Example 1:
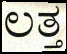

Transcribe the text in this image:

ಲತ್ತ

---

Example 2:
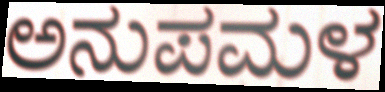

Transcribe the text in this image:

ಅನುಪಮಳ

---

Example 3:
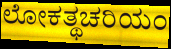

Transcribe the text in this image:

ಲೋಕತ್ಥಚರಿಯಂ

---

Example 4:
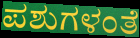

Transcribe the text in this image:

ಪಶುಗಳಂತೆ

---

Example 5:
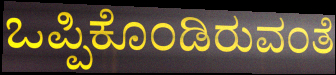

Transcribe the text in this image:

ಒಪ್ಪಿಕೊಂಡಿರುವಂತೆ